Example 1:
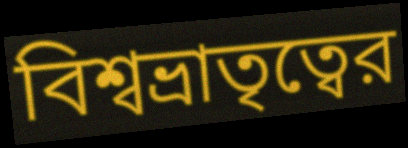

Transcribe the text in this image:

বিশ্বভ্রাতৃত্বের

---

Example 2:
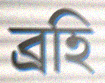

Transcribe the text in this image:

ব্রহি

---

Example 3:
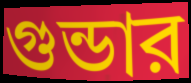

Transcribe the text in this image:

গুন্ডার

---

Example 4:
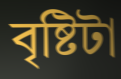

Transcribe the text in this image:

বৃষ্টিটা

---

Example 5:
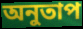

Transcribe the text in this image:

অনুতাপ